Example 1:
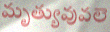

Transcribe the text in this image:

మృత్యువువలె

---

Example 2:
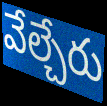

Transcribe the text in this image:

వేల్చేరు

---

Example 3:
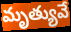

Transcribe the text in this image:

మృత్యువే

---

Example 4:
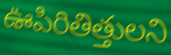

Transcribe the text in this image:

ఊపిరితిత్తులని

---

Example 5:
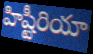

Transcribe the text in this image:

హిష్టీరియా